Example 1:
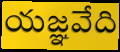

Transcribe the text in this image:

యజ్ఞవేది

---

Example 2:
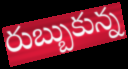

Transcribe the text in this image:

రుబ్బుకున్న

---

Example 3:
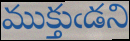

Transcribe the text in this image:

ముక్తుఁడని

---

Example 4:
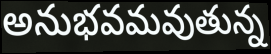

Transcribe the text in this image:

అనుభవమవుతున్న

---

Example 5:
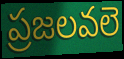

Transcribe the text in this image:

ప్రజలవలె